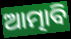
ଆତ୍ମାବି